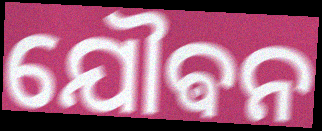
ଯୌଵନ